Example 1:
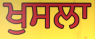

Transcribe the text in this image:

ਖੁਸਲਾ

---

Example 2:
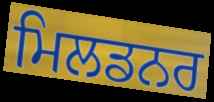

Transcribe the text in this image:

ਮਿਲਡਨਰ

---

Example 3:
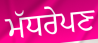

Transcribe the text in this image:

ਮੱਧਰੇਪਣ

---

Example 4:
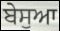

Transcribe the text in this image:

ਬੇਸੁਆ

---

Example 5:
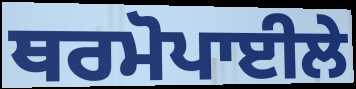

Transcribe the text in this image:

ਥਰਮੋਪਾਈਲੇ